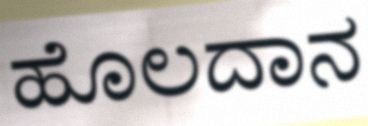
ಹೊಲದಾನ